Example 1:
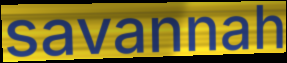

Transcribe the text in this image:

savannah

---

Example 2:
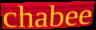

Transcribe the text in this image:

chabee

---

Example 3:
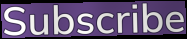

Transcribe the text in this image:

Subscribe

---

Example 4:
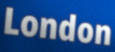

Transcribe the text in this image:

London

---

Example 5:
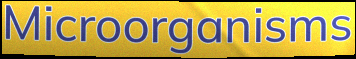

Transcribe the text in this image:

Microorganisms